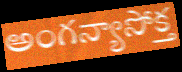
అంగన్యాసోక్త